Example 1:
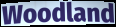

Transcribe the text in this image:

Woodland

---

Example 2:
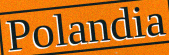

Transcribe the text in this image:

Polandia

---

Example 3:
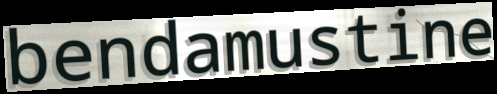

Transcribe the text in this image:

bendamustine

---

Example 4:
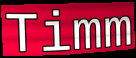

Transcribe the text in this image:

Timm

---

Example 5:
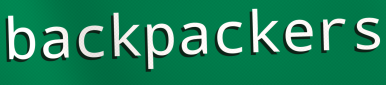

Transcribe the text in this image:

backpackers